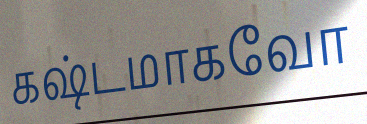
கஷ்டமாகவோ